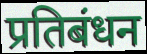
प्रतिबंधन